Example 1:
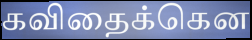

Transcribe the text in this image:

கவிதைக்கென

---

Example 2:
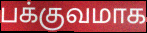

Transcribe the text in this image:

பக்குவமாக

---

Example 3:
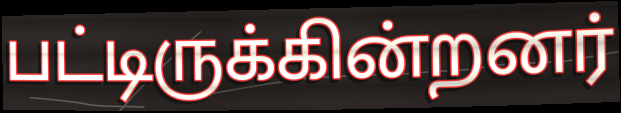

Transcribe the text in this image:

பட்டிருக்கின்றனர்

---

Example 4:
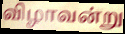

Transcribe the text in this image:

விழாவன்று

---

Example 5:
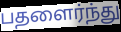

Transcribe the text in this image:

பதளைர்ந்து